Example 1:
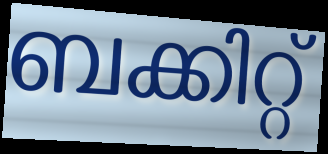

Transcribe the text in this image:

ബക്കിറ്റ്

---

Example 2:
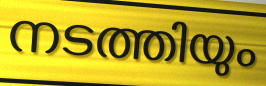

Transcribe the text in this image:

നടത്തിയും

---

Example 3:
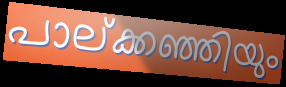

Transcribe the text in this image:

പാല്ക്കഞ്ഞിയും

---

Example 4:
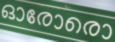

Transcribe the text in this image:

ഓരോരൊ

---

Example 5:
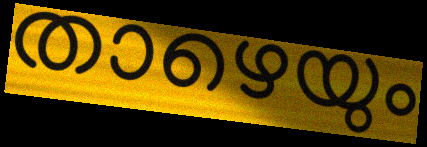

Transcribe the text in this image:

താഴെയും